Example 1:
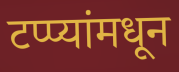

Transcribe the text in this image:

टप्प्यांमधून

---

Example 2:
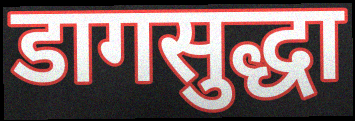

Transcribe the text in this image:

डागसुद्धा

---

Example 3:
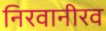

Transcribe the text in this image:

निरवानीरव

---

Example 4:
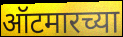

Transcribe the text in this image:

ऑटमारच्या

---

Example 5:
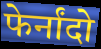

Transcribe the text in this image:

फेर्नांदो